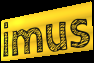
imus